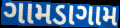
ગામડાગામ